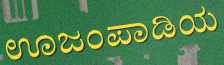
ಊಜಂಪಾಡಿಯ